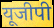
यूजीपी